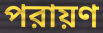
পরায়ণ